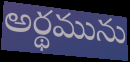
అర్థమును